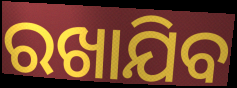
ରଖାଯିବ